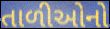
તાળીઓનો